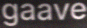
gaave